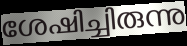
ശേഷിച്ചിരുന്നു